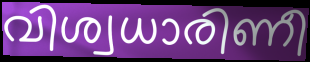
വിശ്വധാരിണീ